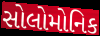
સોલોમોનિક